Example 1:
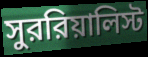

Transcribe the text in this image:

সুররিয়ালিস্ট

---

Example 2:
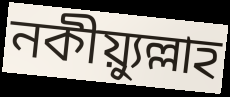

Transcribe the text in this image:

নকীয়্যুল্লাহ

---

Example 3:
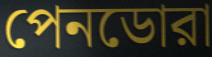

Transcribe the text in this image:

পেনডোরা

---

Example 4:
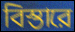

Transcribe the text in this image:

বিস্তারে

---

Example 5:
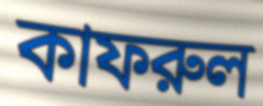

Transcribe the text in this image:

কাফরুল